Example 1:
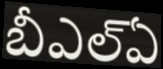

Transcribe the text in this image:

బీఎల్ఏ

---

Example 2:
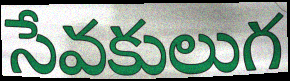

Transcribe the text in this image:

సేవకులుగ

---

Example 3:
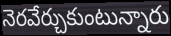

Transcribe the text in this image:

నెరవేర్చుకుంటున్నారు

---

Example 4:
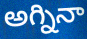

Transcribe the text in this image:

అగ్నినా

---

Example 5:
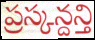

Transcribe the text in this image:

ప్రస్కన్దన్తి